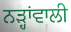
ਨੜ੍ਹਾਂਵਾਲੀ